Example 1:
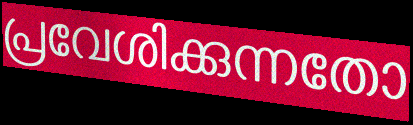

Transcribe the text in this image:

പ്രവേശിക്കുന്നതോ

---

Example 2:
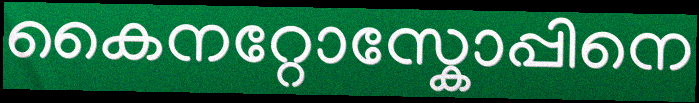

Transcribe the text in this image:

കൈനറ്റോസ്കോപ്പിനെ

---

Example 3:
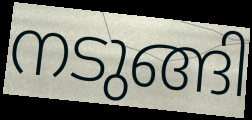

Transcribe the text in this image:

നടുങ്ങി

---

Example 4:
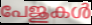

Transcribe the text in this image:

പേജുകൾ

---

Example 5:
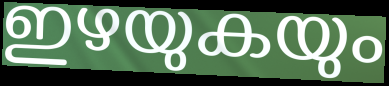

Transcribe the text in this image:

ഇഴയുകയും